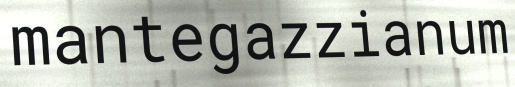
mantegazzianum